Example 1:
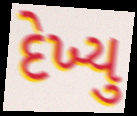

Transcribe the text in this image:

દેખ્યુ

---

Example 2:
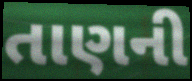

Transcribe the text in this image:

તાણની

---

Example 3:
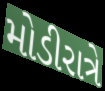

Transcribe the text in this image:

મોડીરાત્રે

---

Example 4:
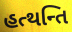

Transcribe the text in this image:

હત્થન્તિ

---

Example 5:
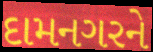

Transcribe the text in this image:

દામનગરને